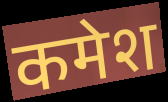
कमेश